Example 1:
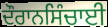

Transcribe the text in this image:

ਦੌਰਾਨਸਿੰਚਾਈ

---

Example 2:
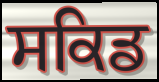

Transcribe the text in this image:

ਸਕਿਡ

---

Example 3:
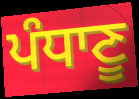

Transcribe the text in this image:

ਪੰਧਾਣੂ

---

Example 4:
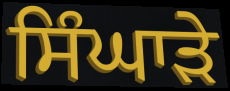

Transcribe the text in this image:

ਸਿੰਘਾੜੇ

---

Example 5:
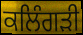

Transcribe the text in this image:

ਕਲਿੰਗੜੀ